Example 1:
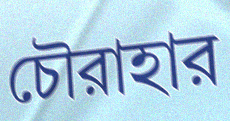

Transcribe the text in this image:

চৌরাহার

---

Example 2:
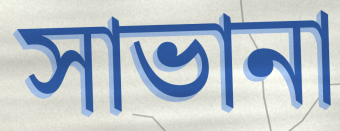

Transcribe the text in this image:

সাভানা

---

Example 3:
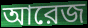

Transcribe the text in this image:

আরেজ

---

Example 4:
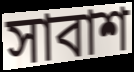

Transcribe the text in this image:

সাবাশ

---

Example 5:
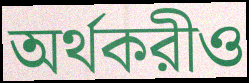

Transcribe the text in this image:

অর্থকরীও